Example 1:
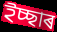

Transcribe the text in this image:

ইচ্ছাৰ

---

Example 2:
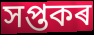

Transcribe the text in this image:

সপ্তকৰ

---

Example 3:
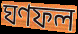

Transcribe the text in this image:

ঘণফল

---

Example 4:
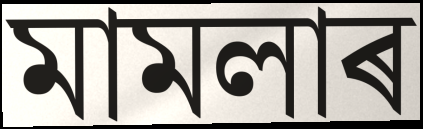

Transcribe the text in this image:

মামলাৰ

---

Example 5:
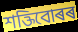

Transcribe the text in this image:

শক্তিবোৰৰ